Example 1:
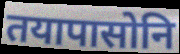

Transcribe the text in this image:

तयापासोनि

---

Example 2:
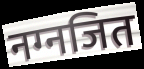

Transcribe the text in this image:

नग्नजित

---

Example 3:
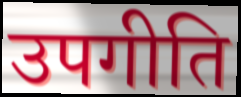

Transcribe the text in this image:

उपगीति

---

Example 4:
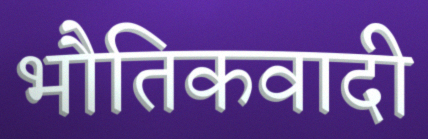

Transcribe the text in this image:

भौतिकवादी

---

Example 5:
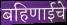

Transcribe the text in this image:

बहिणाईचे